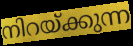
നിറയ്ക്കുന്ന